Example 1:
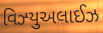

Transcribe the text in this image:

વિઝ્યુઅલાઈઝ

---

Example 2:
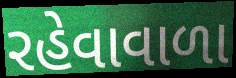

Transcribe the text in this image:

રહેવાવાળા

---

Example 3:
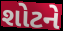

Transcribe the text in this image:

શોટને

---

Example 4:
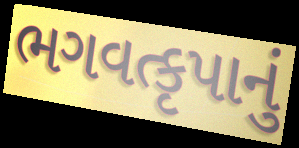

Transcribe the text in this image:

ભગવત્કૃપાનું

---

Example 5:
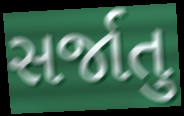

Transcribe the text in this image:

સર્જાતુ